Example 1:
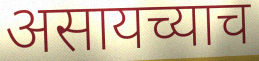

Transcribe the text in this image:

असायच्याच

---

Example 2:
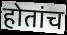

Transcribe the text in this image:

होतांच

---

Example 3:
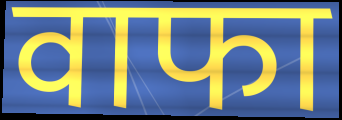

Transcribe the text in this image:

वाफा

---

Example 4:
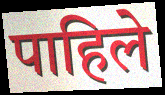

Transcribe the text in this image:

पाहिले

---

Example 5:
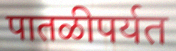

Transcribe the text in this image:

पातळीपर्यत